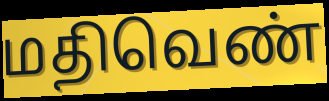
மதிவெண்